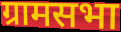
ग्रामसभा